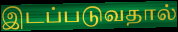
இடப்படுவதால்